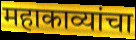
महाकाव्यांचा